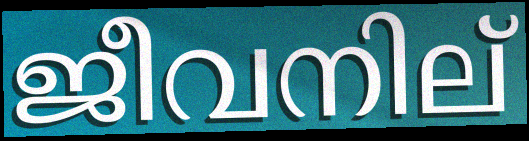
ജീവനില്